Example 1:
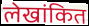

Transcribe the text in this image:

लेखांकित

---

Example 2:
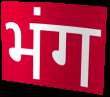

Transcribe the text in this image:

भंग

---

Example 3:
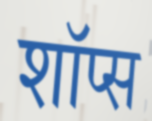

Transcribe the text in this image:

शॉप्स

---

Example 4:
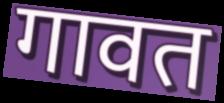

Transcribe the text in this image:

गावत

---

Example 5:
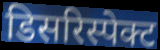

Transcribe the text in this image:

डिसरिस्पेक्ट